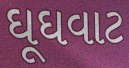
ઘૂઘવાટ